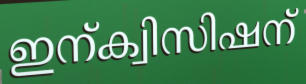
ഇന്ക്വിസിഷന്